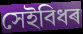
সেইবিধৰ